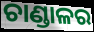
ଚାଣ୍ଡାଳର